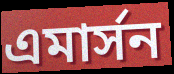
এমার্সন